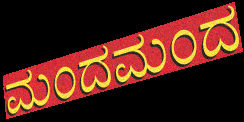
ಮಂದಮಂದ